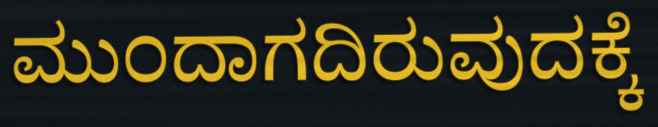
ಮುಂದಾಗದಿರುವುದಕ್ಕೆ